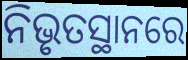
ନିଭୃତସ୍ଥାନରେ